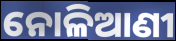
ନୋଳିଆଣୀ